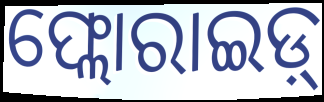
ଫ୍ଲୋରାଇଡ଼୍